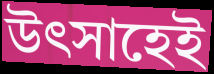
উৎসাহেই